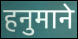
हनुमाने